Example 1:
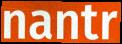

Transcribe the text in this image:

nantr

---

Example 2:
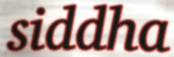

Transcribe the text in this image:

siddha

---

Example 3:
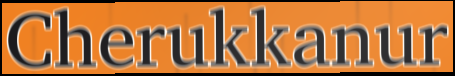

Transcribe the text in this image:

Cherukkanur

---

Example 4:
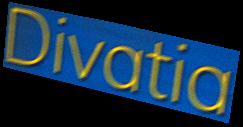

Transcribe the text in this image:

Divatia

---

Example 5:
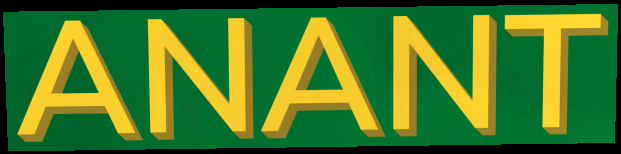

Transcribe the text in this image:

ANANT